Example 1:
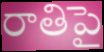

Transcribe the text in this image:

రాతిపై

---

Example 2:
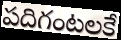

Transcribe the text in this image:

పదిగంటలకే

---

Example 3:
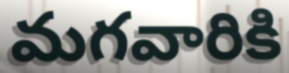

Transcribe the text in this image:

మగవారికి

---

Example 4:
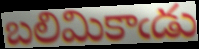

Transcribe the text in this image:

బలిమికాఁడు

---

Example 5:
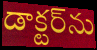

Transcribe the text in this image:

డాక్టర్‌ను